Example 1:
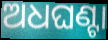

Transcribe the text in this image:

ଅଧଘଣ୍ଟା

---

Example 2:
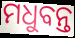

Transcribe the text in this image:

ମଧୁବନ୍ତ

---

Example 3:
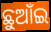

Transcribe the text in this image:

ଛୁଆଁଇ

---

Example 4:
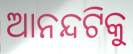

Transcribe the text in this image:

ଆନନ୍ଦଟିକୁ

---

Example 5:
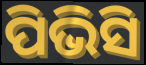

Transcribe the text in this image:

ପିଭିସି